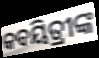
କବୟିତ୍ରୀଙ୍କ